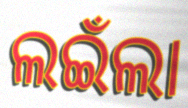
ଲଇଁଲା